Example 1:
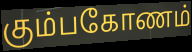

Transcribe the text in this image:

கும்பகோணம்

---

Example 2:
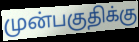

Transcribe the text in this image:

முன்பகுதிக்கு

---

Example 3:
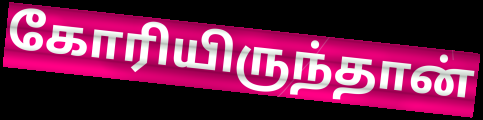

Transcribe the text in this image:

கோரியிருந்தான்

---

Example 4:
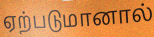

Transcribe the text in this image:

ஏற்படுமானால்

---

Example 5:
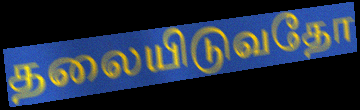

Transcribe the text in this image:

தலையிடுவதோ